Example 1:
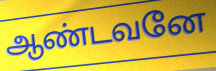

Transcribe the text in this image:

ஆண்டவனே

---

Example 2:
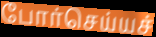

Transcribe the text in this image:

போர்செய்யச்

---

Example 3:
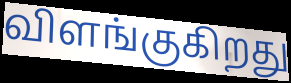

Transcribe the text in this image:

விளங்குகிறது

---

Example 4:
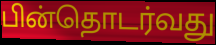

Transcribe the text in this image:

பின்தொடர்வது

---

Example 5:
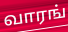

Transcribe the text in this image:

வாரங்